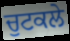
ਚੁਟਕਲੇ